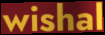
wishal